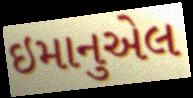
ઇમાનુએલ